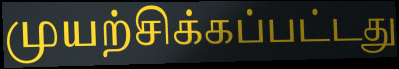
முயற்சிக்கப்பட்டது